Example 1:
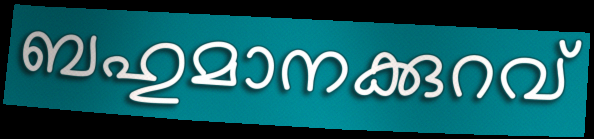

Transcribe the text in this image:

ബഹുമാനക്കുറവ്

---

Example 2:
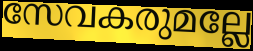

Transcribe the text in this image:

സേവകരുമല്ലേ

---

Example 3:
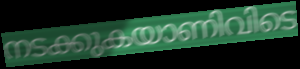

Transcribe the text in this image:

നടക്കുകയാണിവിടെ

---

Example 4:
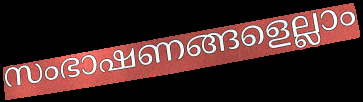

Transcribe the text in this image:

സംഭാഷണങ്ങളെല്ലാം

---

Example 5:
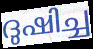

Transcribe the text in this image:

ദുഷിച്ച